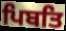
ਪਿਬਤਿ